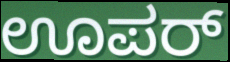
ಊಪರ್